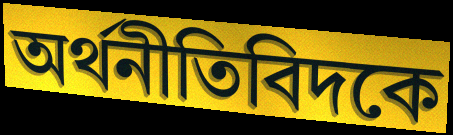
অর্থনীতিবিদকে